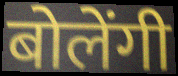
बोलेंगी